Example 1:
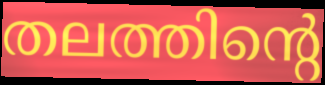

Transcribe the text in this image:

തലത്തിന്റെ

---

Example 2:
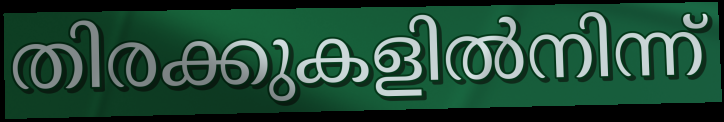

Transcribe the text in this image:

തിരക്കുകളിൽനിന്ന്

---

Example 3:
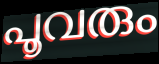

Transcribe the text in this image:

പൂവരും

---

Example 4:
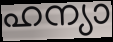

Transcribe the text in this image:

ഹന്യാ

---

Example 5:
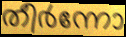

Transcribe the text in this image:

തീർന്നോ